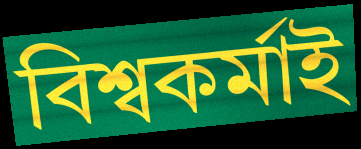
বিশ্বকৰ্মাই